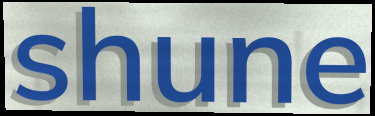
shune